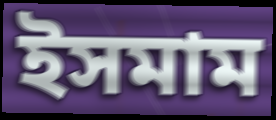
ইসমাম